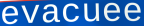
evacuee